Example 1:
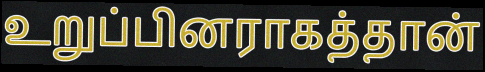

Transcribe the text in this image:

உறுப்பினராகத்தான்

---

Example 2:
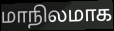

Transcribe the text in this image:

மாநிலமாக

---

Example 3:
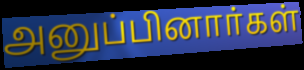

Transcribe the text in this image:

அனுப்பினார்கள்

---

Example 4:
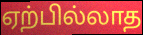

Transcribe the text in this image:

ஏற்பில்லாத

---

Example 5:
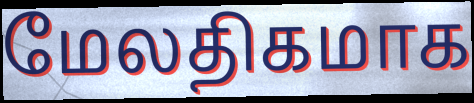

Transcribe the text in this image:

மேலதிகமாக